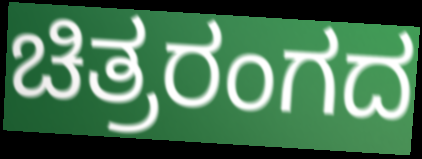
ಚಿತ್ರರಂಗದ